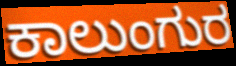
ಕಾಲುಂಗುರ